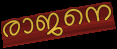
രാജനെ